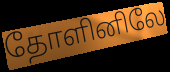
தோளினிலே